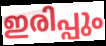
ഇരിപ്പും